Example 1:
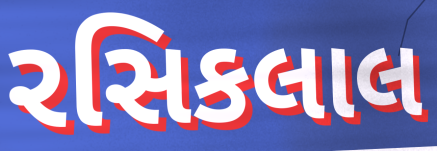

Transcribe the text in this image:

રસિકલાલ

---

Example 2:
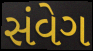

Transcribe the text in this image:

સંવેગ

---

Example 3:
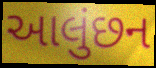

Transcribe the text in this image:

આલુંછન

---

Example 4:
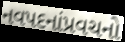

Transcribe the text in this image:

નવપદનાંપ્રવચનો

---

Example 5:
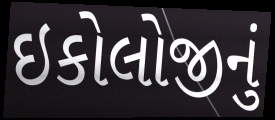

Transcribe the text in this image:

ઇકોલોજીનું